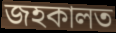
জহকালত